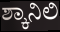
ಶ್ಕಾನಿಲಿ